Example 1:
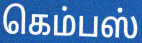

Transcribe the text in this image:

கெம்பஸ்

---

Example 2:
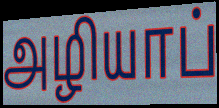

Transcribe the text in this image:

அழியாப்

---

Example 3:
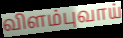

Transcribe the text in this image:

விளம்புவாய்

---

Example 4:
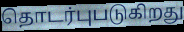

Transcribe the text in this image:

தொடர்புபடுகிறது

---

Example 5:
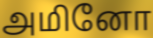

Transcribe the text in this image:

அமினோ